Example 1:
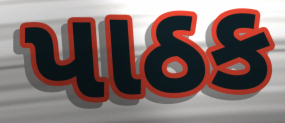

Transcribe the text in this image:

પાઠક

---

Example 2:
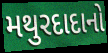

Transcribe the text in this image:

મથુરદાદાનો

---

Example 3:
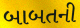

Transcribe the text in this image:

બાબતની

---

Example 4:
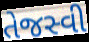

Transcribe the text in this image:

તેજસ્વી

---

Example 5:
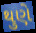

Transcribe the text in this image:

થુણે